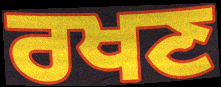
ਰਖਣ